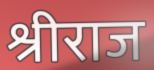
श्रीराज